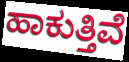
ಹಾಕುತ್ತಿವೆ